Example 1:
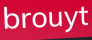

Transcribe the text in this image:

brouyt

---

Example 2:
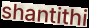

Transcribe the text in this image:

shantithi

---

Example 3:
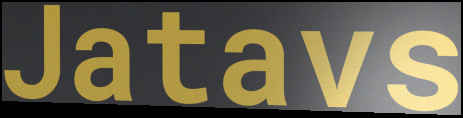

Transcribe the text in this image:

Jatavs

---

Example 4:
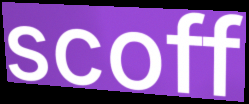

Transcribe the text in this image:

scoff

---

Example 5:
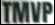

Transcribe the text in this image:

TMVP